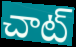
చాట్